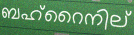
ബഹ്റൈനില്